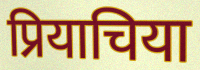
प्रियाचिया